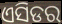
ଏସିଡର